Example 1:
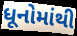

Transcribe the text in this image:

ધૂનોમાંથી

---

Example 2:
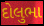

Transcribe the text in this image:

દોલુભા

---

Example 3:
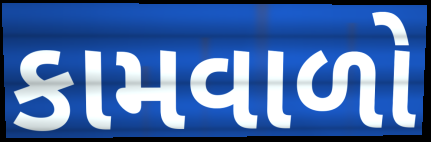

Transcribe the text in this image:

કામવાળો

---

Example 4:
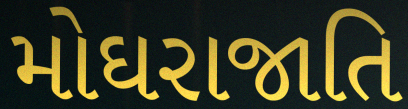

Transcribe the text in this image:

મોઘરાજાતિ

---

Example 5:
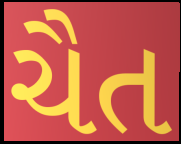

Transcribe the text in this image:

ચૈત